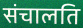
संचालति